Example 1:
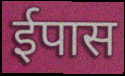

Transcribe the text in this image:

ईपास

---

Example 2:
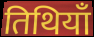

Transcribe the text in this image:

तिथियाँ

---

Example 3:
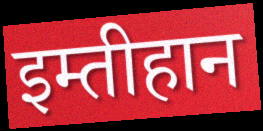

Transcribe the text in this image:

इम्तीहान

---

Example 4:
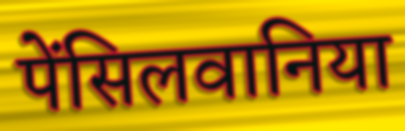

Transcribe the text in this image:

पेंसिलवानिया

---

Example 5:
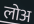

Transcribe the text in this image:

लोअ